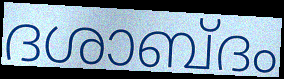
ദശാബ്ദം